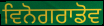
ਵਿਨੋਗਰਾਡੋਵ